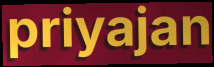
priyajan